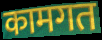
कामगत